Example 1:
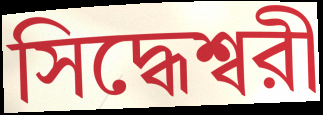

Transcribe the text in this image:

সিদ্ধেশ্বরী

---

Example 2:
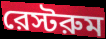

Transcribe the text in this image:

রেস্টরুম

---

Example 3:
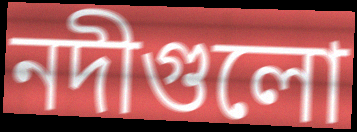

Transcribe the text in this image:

নদীগুলো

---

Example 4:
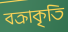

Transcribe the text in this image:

বক্রাকৃতি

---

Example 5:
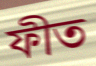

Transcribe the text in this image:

ফীত